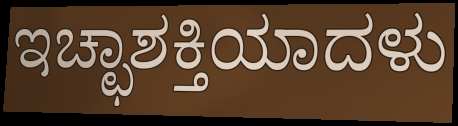
ಇಚ್ಛಾಶಕ್ತಿಯಾದಳು